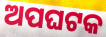
ଅପଘଟକ